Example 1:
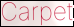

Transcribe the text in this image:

Carpet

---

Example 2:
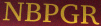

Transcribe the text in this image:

NBPGR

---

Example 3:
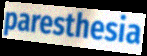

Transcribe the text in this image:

paresthesia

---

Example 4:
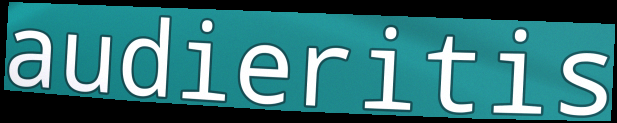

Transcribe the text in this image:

audieritis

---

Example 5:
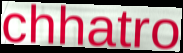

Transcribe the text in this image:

chhatro